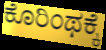
ಕೊರಿಂಥಕ್ಕೆ